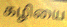
கழியை